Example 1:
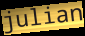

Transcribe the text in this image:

julian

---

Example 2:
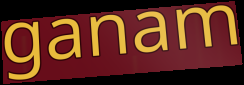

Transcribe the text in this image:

ganam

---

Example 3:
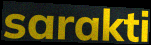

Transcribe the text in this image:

sarakti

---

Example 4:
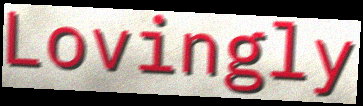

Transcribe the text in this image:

Lovingly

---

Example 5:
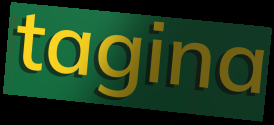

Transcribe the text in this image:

tagina